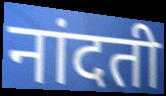
नांदती